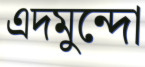
এদমুন্দো